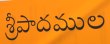
శ్రీపాదముల